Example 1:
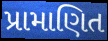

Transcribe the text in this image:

પ્રામાણિત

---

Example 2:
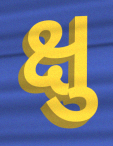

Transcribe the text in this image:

ક્ષુ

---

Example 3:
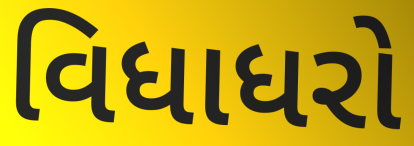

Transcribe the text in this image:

વિધાધરો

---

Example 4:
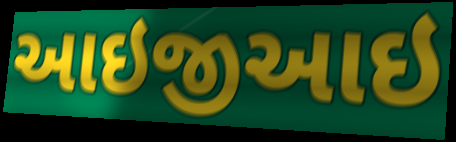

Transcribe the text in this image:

આઇજીઆઇ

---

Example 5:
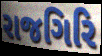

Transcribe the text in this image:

રાજગિરિ